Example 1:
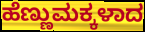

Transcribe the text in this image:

ಹೆಣ್ಣುಮಕ್ಕಳಾದ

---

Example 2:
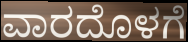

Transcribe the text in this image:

ವಾರದೊಳಗೆ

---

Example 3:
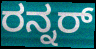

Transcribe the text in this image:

ರನ್ನರ್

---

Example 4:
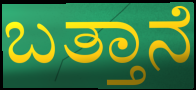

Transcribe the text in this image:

ಬತ್ತಾನೆ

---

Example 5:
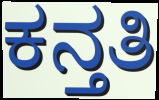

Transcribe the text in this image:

ಕನ್ತತಿ